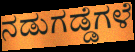
ನಡುಗಡ್ಡೆಗಳೆ